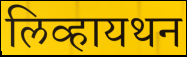
लिव्हायथन